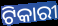
ଟିକାରୀ